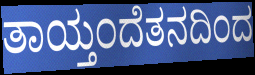
ತಾಯ್ತಂದೆತನದಿಂದ